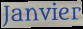
Janvier